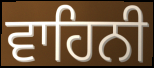
ਵਾਹਿਨੀ